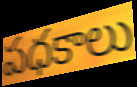
పధకాలు